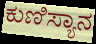
ಕುಣಿಸ್ಯಾನ